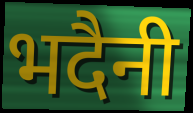
भदैनी